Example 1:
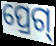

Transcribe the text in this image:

ପ୍ରେଗ୍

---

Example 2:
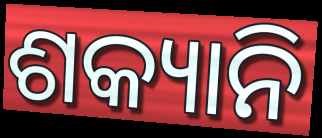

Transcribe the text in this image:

ଶକ୍ୟାନି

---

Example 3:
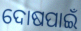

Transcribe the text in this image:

ଦୋଷପାଇଁ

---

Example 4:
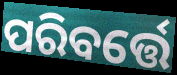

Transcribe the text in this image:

ପରିବର୍ତ୍ତେ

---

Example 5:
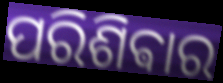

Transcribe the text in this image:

ପରିଶିଵାର